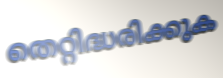
തെറ്റിദ്ധരിക്കുക